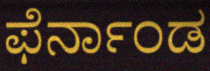
ಫೆರ್ನಾಂಡ